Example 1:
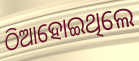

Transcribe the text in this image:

ଠିଆହୋଇଥିଲେ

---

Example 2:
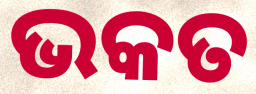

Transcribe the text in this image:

ଭକତ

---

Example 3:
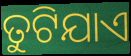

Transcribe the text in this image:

ତୁଟିଯାଏ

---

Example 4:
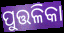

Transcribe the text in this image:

ପୁତ୍ତଳିକା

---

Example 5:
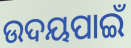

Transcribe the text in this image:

ଉଦୟପାଇଁ